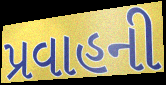
પ્રવાહની